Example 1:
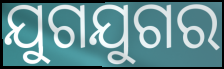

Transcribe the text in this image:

ଯୁଗଯୁଗର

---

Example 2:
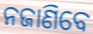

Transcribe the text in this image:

ନଜାଣିବେ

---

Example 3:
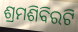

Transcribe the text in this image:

ଶ୍ରମଶିବିରଟି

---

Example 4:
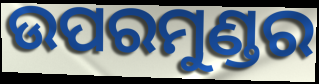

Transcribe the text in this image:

ଉପରମୁଣ୍ଡର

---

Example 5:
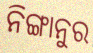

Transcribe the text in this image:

ନିଙ୍ଗାନୁର